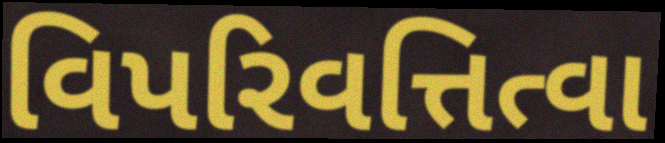
વિપરિવત્તિત્વા